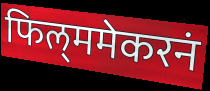
फिल्ममेकरनं